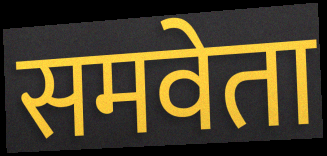
समवेता